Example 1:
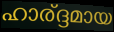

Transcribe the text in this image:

ഹാര്ദ്ദമായ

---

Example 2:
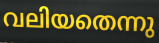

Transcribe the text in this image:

വലിയതെന്നു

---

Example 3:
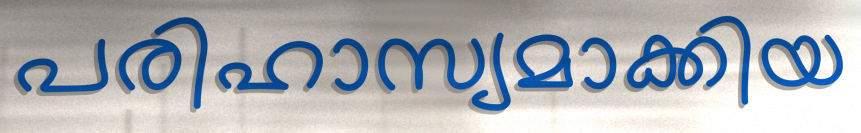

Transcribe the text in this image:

പരിഹാസ്യമാക്കിയ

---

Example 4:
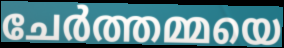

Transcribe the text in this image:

ചേർത്തമ്മയെ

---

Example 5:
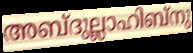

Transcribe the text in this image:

അബ്ദുല്ലാഹിബ്നു